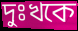
দুঃখকে